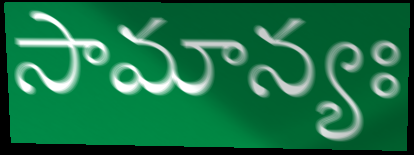
సామాన్యః